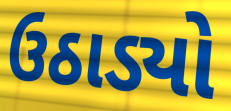
ઉઠાડ્યો